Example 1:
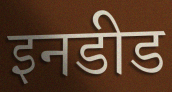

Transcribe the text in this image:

इनडीड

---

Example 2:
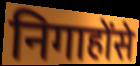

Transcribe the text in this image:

निगाहोंसे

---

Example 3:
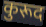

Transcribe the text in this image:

कुरूद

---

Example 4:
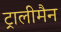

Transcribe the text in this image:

ट्रालीमैन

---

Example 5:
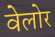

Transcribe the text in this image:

वेलोर